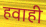
हवाही